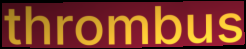
thrombus